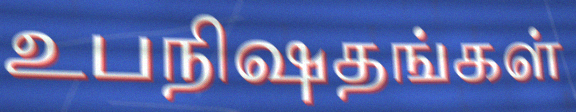
உபநிஷதங்கள்